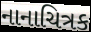
નાનાચિત્રક